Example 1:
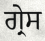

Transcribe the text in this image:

ਗ੍ਰੇਸ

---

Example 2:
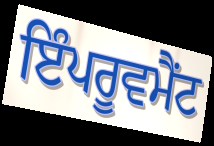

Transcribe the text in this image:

ਇੰਪਰੂਵਮੈਂਟ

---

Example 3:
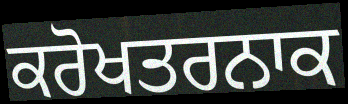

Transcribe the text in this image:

ਕਰੋਖਤਰਨਾਕ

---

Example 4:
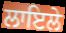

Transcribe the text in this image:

ਲਾਇਲੇ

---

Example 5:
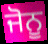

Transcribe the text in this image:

ਜੋਨੂ